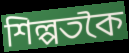
শিল্পতকৈ